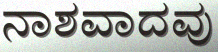
ನಾಶವಾದವು